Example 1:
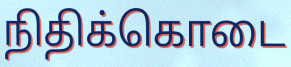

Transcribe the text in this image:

நிதிக்கொடை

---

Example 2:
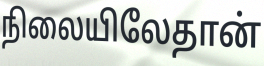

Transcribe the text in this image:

நிலையிலேதான்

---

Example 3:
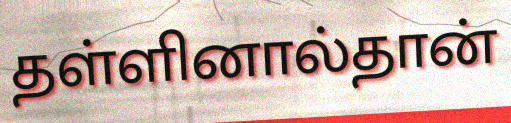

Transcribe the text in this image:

தள்ளினால்தான்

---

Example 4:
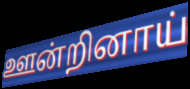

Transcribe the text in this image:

ஊன்றினாய்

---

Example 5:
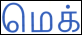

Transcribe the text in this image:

மெக்